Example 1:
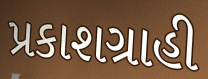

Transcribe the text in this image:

પ્રકાશગ્રાહી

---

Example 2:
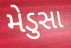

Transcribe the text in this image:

મેડુસા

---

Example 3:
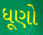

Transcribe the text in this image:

ધૂણો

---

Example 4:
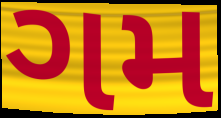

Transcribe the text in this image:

ગમ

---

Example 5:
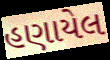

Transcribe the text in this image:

હણાયેલ